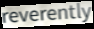
reverently